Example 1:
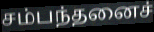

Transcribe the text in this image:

சம்பந்தனைச்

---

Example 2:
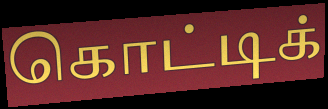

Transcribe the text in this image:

கொட்டிக்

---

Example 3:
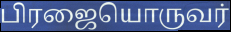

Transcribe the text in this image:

பிரஜையொருவர்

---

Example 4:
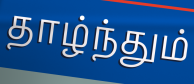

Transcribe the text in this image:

தாழ்ந்தும்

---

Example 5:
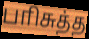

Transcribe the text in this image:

பரிசுத்த